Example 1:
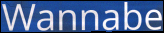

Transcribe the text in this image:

Wannabe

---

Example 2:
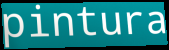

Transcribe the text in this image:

pintura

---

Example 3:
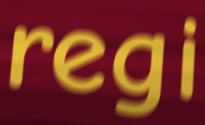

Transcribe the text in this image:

regi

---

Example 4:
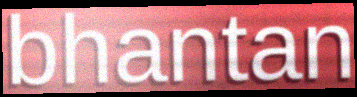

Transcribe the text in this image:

bhantan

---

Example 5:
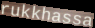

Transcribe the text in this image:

rukkhassa